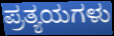
ಪ್ರತ್ಯಯಗಳು